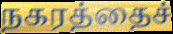
நகரத்தைச்